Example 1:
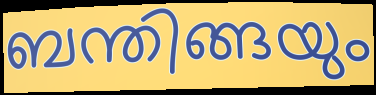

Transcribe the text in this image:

ബന്തിങ്ങയും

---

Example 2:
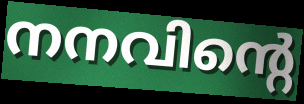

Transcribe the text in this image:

നനവിന്റെ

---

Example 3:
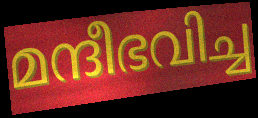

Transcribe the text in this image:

മന്ദീഭവിച്ച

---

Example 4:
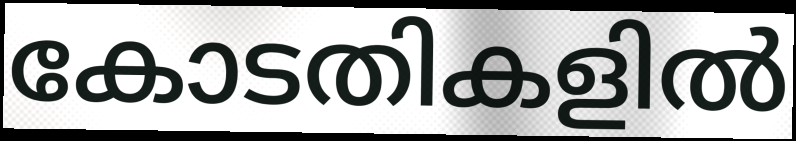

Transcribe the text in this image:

കോടതികളിൽ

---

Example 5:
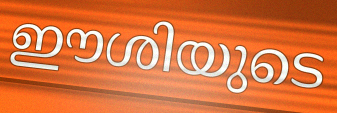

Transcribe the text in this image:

ഈശിയുടെ